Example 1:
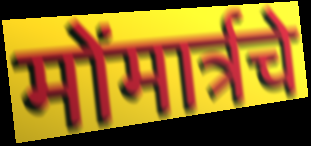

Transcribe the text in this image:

मोंमार्त्रचे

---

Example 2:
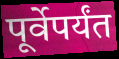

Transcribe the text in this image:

पूर्वेपर्यंत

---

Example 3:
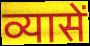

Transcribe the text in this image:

व्यासें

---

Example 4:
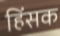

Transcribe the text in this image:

हिंसक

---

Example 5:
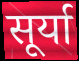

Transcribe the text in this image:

सूर्या